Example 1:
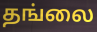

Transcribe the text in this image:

தங்லை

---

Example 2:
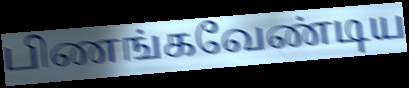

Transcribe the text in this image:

பிணங்கவேண்டிய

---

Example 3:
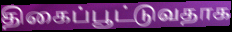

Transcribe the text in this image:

திகைப்பூட்டுவதாக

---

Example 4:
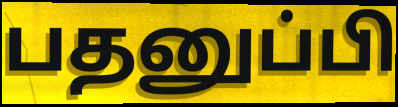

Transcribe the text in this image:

பதனுப்பி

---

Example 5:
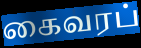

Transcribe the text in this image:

கைவரப்